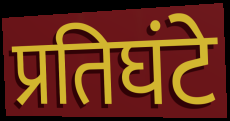
प्रतिघंटे